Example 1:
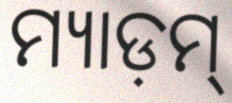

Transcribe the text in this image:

ମ୍ୟାଡ଼ମ୍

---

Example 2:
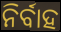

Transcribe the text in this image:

ନିର୍ବାହ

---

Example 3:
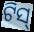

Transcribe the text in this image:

ଟିସ୍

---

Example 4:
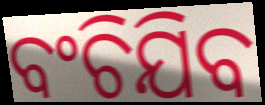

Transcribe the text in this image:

ବଂଚିଯିବ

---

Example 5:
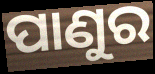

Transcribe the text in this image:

ପାଣୁର